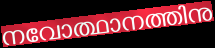
നവോത്ഥാനത്തിനു